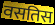
वसतिस